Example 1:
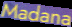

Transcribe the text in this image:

Madana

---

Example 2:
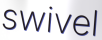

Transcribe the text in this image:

swivel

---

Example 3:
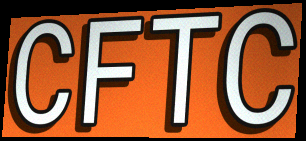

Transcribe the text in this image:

CFTC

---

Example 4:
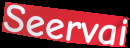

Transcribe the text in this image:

Seervai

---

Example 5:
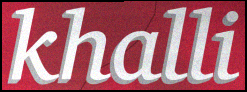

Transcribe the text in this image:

khalli